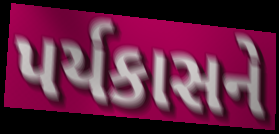
પર્યકાસને